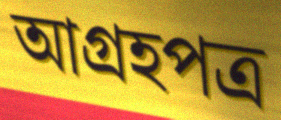
আগ্রহপত্র